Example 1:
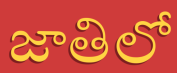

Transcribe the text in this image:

జాతిలో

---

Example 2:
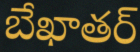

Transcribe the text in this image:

బేఖాతర్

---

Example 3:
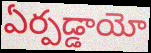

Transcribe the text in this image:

ఏర్పడ్డాయో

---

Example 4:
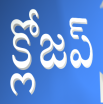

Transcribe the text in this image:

క్లోజప్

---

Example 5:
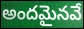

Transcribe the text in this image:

అందమైనవే